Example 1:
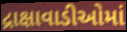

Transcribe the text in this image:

દ્રાક્ષાવાડીઓમાં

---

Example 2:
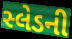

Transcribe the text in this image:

સ્લેડની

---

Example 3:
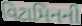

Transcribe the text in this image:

વિટામિનની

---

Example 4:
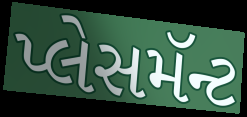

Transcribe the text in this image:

પ્લેસમૅન્ટ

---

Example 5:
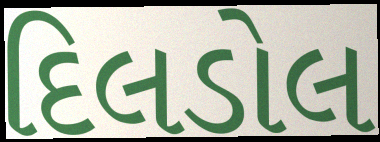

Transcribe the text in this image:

દિલડોલ